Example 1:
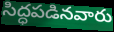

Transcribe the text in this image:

సిద్ధపడినవారు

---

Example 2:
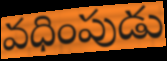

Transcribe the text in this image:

వధింపుడు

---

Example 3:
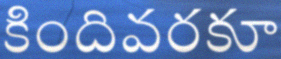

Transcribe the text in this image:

కిందివరకూ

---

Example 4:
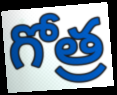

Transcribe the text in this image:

గోత్ర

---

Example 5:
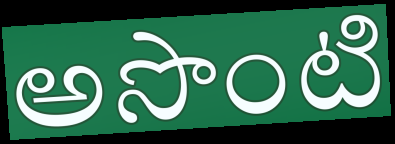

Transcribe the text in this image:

అసొంటి